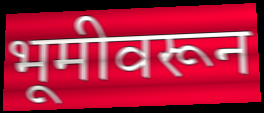
भूमीवरून